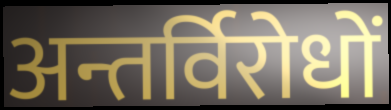
अन्तर्विरोधों